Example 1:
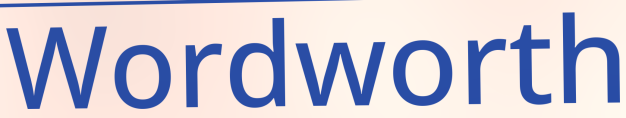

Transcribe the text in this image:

Wordworth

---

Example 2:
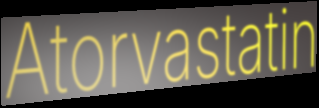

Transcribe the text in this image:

Atorvastatin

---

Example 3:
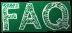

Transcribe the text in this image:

FAQ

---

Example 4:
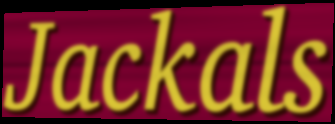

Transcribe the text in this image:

Jackals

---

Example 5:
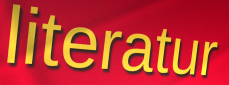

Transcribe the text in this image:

literatur